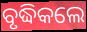
ବୃଦ୍ଧିକଲେ